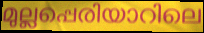
മുല്ലപ്പെരിയാറിലെ